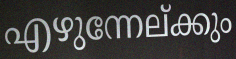
എഴുന്നേല്ക്കും